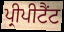
ਪ੍ਰੀਪੀਟੈਂਟ